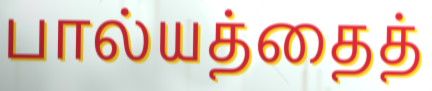
பால்யத்தைத்